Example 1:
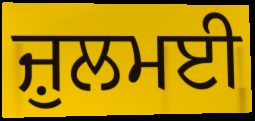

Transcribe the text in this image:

ਜ਼ੁਲਮਈ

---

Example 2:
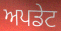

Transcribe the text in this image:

ਅਪਡੇਟ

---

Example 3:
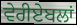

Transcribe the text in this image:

ਵੇਰੀਏਬਲਾਂ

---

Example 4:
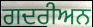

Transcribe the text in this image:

ਗਦਰੀਅਨ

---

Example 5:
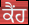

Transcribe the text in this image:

ਕੈਂਹ